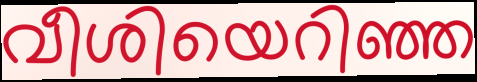
വീശിയെറിഞ്ഞ